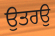
ਉਤਰਉ